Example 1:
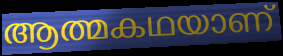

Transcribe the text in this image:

ആത്മകഥയാണ്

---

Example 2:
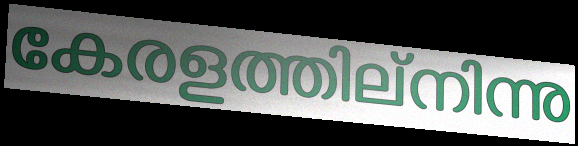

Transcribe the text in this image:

കേരളത്തില്നിന്നു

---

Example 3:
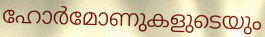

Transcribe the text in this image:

ഹോർമോണുകളുടെയും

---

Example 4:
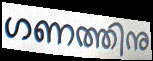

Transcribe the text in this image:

ഗണത്തിനു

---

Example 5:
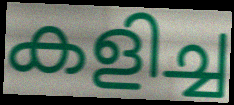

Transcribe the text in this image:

കളിച്ച